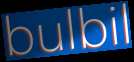
bulbil